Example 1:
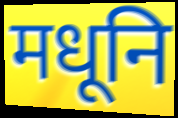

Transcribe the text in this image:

मधूनि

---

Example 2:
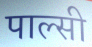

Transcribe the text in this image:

पाल्सी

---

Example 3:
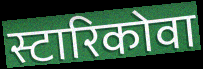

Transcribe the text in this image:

स्टारिकोवा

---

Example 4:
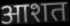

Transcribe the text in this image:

आशत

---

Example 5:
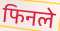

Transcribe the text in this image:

फिनले